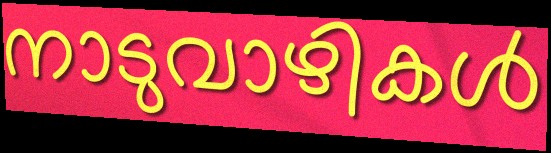
നാടുവാഴികൾ